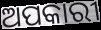
ଅପକାରୀ